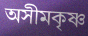
অসীমকৃষ্ণ